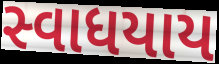
સ્વાધયાય